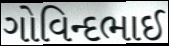
ગોવિન્દભાઈ